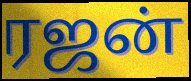
ரஜன்